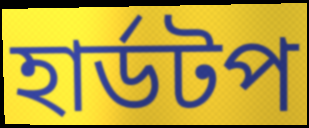
হার্ডটপ